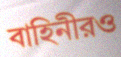
বাহিনীরও